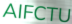
AIFCTU